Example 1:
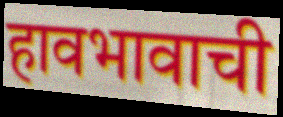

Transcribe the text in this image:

हावभावाची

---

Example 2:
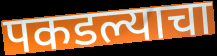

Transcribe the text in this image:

पकडल्याचा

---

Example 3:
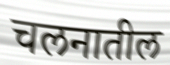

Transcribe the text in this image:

चलनातील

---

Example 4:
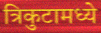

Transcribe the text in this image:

त्रिकुटामध्ये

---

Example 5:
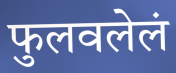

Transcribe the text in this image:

फुलवलेलं